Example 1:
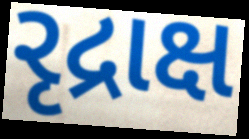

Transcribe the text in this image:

રૃદ્રાક્ષ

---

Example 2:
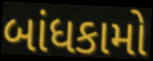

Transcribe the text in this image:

બાંધકામો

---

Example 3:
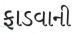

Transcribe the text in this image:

ફાડવાની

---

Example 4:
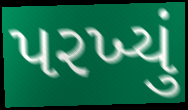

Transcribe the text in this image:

પરખ્યું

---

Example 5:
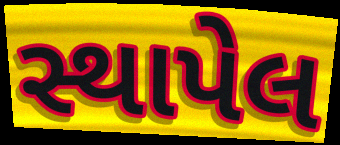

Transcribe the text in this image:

સ્થાપેલ